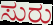
ಸುರು